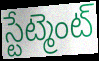
స్టేట్మెంట్